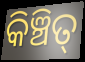
କିଞ୍ଚିତ୍